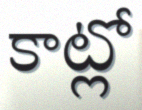
కాట్లో